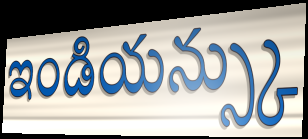
ఇండియన్స్కు